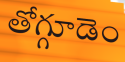
తోగ్గూడెం